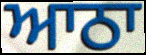
ਆਠਾ